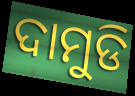
ଦାମୁଡି